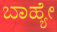
ಬಾಹ್ಯೇ